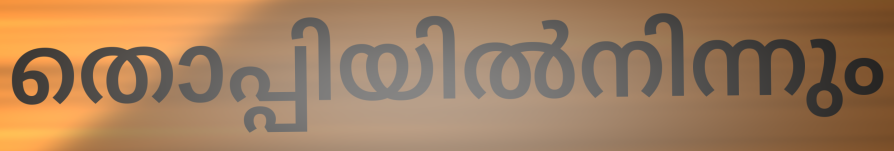
തൊപ്പിയിൽനിന്നും